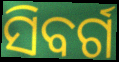
ସିବର୍ଗ